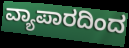
ವ್ಯಾಪಾರದಿಂದ